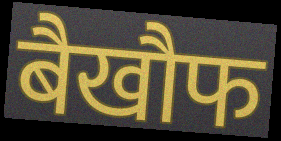
बैखौफ